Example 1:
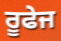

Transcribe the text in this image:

ਰੂਫੇਜ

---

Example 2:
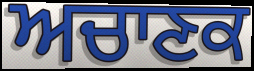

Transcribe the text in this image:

ਅਚਾਣਕ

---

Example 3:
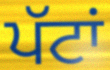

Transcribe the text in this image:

ਪੱਟਾਂ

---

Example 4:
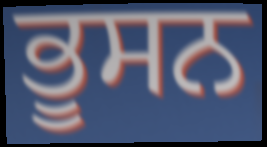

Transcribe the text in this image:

ਭੂਸਨ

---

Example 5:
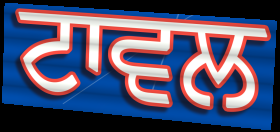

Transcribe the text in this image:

ਟਾਵਲ